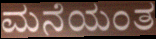
ಮನೆಯಂತ